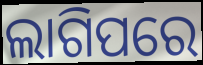
ଲାଗିପରେ